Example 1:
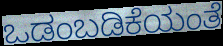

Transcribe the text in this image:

ಒಡಂಬಡಿಕೆಯಂತೆ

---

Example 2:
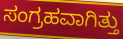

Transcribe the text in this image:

ಸಂಗ್ರಹವಾಗಿತ್ತು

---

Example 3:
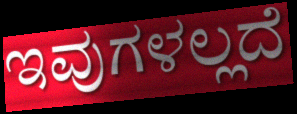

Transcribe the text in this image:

ಇವುಗಳಲ್ಲದೆ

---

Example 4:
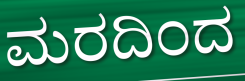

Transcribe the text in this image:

ಮರದಿಂದ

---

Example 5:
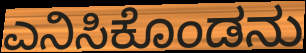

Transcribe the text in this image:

ಎನಿಸಿಕೊಂಡನು